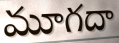
మూగదా